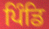
ਪਿੰਡਿ